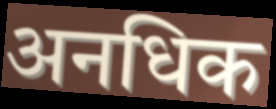
अनधिक